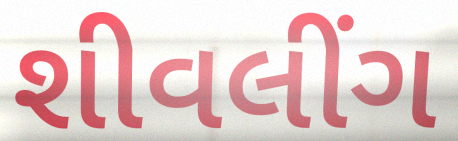
શીવલીંગ